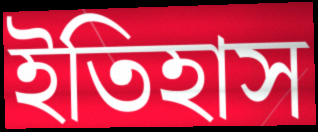
ইতিহাস